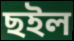
ছইল